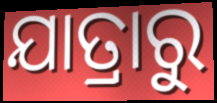
ଯାତ୍ରାରୁ